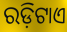
ରଡ଼ିଟାଏ